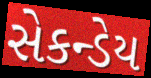
સેકન્ડેય